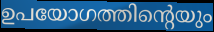
ഉപയോഗത്തിന്റെയും